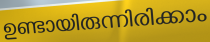
ഉണ്ടായിരുന്നിരിക്കാം